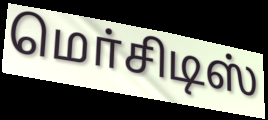
மெர்சிடிஸ்